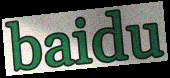
baidu